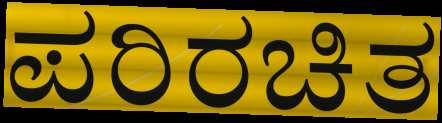
ಪರಿರಚಿತ